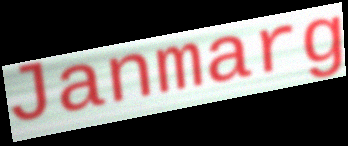
Janmarg